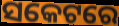
ସକେଟରେ